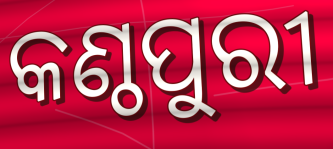
କଣ୍ଠପୁରୀ